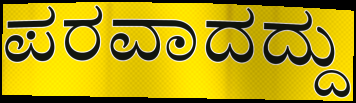
ಪರವಾದದ್ದು